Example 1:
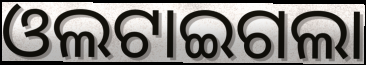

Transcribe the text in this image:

ଓଲଟାଇଗଲା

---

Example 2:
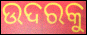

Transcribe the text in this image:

ଉଦରକୁ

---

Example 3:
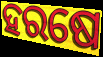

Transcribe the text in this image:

ହରଷେ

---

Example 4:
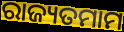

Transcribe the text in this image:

ରାଜ୍ୟତମାମ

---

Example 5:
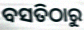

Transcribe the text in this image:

ବସତିଠାରୁ